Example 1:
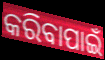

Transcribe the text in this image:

କରିବାପାଇଁ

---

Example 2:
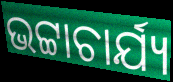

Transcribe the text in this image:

ଭଟ୍ଟାଚାର୍ଯ୍ୟ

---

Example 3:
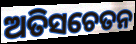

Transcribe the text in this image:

ଅତିସଚେତନ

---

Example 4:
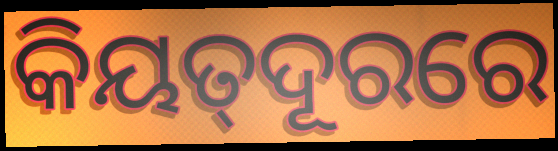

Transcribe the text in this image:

କିୟତ୍‌ଦୂରରେ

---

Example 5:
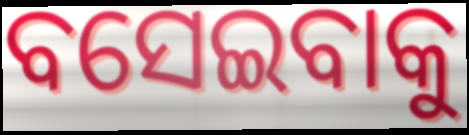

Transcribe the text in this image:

ବସେଇବାକୁ